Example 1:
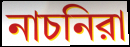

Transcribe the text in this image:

নাচনিরা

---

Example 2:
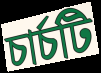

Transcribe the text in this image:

চার্চটি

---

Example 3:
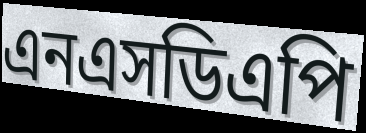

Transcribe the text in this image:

এনএসডিএপি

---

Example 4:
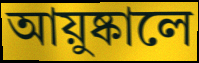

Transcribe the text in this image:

আয়ুষ্কালে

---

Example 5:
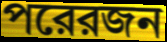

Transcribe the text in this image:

পরেরজন